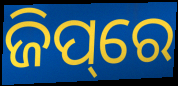
ଜିପ୍‌ରେ